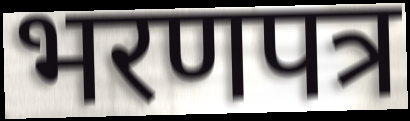
भरणपत्र